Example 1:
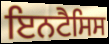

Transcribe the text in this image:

ਇਨਟੈਸਿਸ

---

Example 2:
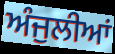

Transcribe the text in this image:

ਅੰਜੁਲੀਆਂ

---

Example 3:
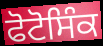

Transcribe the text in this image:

ਫੋਟੋਸਿੰਕ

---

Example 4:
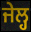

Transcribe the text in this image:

ਜੇਲ੍ਹ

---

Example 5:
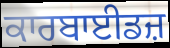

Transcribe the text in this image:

ਕਾਰਬਾਈਡਜ਼